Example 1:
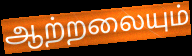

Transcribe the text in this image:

ஆற்றலையும்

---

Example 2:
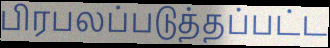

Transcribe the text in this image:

பிரபலப்படுத்தப்பட்ட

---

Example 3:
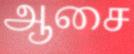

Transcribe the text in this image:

ஆசை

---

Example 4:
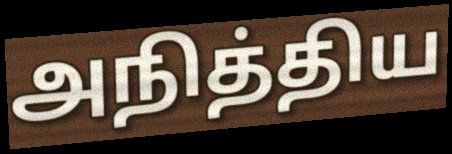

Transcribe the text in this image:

அநித்திய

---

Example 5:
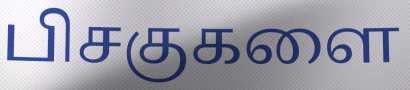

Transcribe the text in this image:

பிசகுகளை